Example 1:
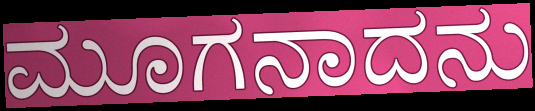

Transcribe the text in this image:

ಮೂಗನಾದನು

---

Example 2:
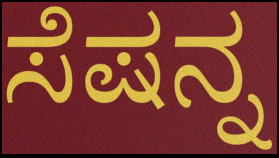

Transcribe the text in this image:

ಸೆಷನ್ನ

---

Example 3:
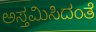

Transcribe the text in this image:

ಅಸ್ತಮಿಸಿದಂತೆ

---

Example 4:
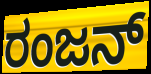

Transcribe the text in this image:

ರಂಜನ್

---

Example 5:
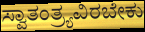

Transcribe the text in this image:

ಸ್ವಾತಂತ್ರ್ಯವಿರಬೇಕು